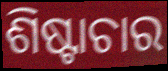
ଶିଷ୍ଟାଚାର